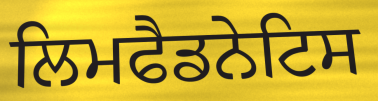
ਲਿਮਫੈਡਨੇਟਿਸ